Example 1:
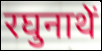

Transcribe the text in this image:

रघुनाथें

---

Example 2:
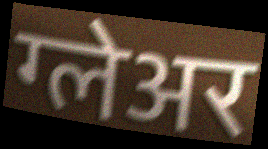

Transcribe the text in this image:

ग्लेअर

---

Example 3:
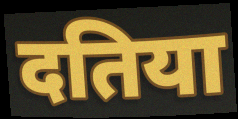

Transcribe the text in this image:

दतिया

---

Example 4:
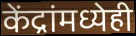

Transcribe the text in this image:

केंद्रांमध्येही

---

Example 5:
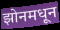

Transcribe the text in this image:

झोनमधून